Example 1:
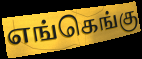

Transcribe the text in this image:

எங்கெங்கு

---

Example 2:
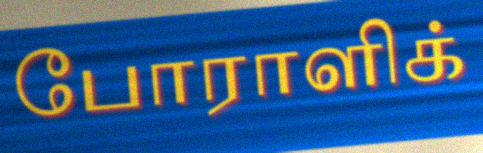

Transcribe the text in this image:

போராளிக்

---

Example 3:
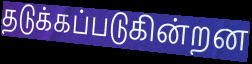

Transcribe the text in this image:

தடுக்கப்படுகின்றன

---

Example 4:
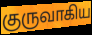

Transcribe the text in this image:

குருவாகிய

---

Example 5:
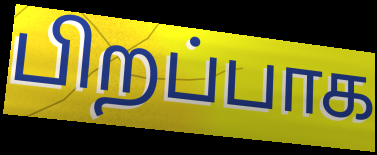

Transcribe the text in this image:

பிறப்பாக